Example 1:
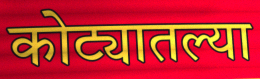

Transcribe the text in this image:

कोट्यातल्या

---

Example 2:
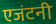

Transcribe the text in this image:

एजंटनी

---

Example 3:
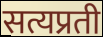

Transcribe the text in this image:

सत्यप्रती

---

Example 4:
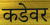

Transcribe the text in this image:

कडेवर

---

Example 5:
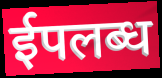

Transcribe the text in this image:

ईपलब्ध